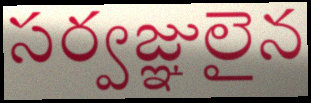
సర్వజ్ఞులైన